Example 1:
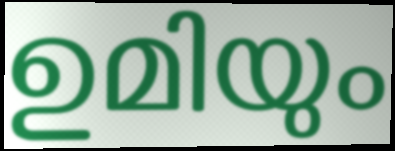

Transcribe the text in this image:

ഉമിയും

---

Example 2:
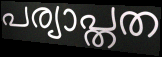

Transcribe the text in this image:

പര്യാപ്തത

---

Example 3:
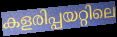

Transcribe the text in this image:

കളരിപ്പയറ്റിലെ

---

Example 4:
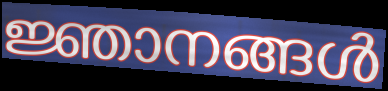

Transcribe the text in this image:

ജ്ഞാനങ്ങൾ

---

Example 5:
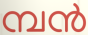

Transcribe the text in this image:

മ്പൻ